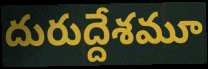
దురుద్దేశమూ